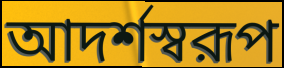
আদর্শস্বরূপ